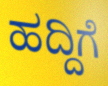
ಹದ್ದಿಗೆ